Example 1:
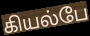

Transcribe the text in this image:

கியல்பே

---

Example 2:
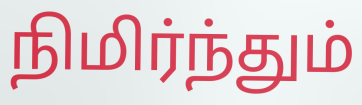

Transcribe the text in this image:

நிமிர்ந்தும்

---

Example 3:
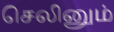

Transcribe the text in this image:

செலினும்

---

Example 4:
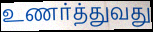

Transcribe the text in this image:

உணர்த்துவது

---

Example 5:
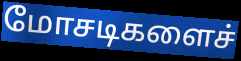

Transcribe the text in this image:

மோசடிகளைச்